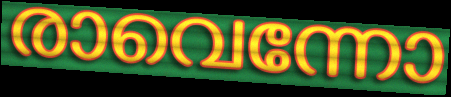
രാവെന്നോ